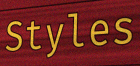
Styles